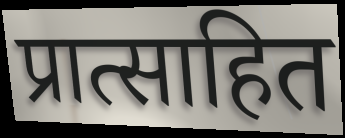
प्रात्साहित